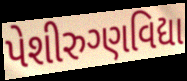
પેશીરુગ્ણવિદ્યા